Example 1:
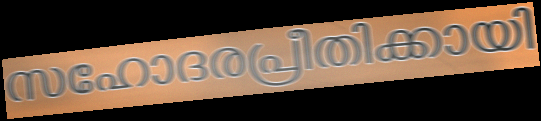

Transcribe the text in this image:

സഹോദരപ്രീതിക്കായി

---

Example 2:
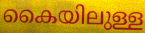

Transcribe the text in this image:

കൈയിലുള്ള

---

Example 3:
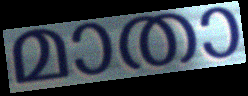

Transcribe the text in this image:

മാതാ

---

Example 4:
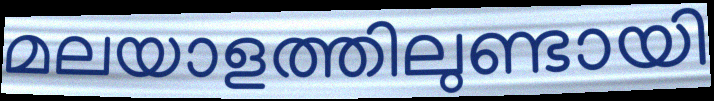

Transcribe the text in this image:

മലയാളത്തിലുണ്ടായി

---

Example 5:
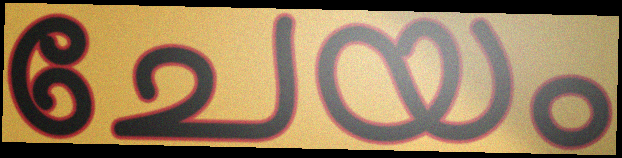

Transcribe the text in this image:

ചേയം